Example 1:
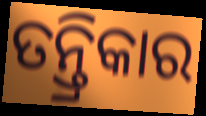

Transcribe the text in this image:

ତନ୍ତ୍ରିକାର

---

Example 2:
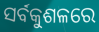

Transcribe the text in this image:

ସର୍ବକୁଶଳରେ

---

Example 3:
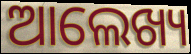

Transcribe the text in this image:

ଆଲେଖ୍ୟ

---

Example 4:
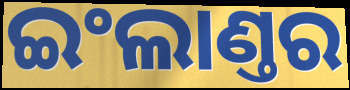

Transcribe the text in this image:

ଇଂଲାଣ୍ତର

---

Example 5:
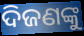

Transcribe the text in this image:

ଦିଜଣଙ୍କୁ